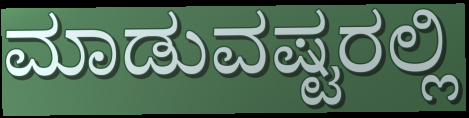
ಮಾಡುವಷ್ಟರಲ್ಲಿ